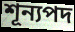
শূন্যপদ